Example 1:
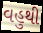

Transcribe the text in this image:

વહુથી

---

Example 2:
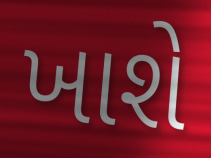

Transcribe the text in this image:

ખાશે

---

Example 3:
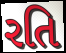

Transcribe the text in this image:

રતિ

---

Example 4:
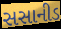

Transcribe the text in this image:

સસાનીડ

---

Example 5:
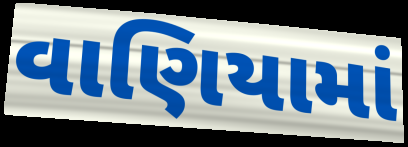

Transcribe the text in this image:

વાણિયામાં